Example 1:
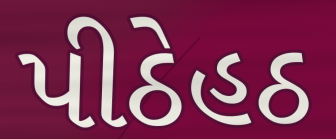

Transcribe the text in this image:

પીઠેહઠ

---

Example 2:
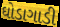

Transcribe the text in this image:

ઘોડાગાડી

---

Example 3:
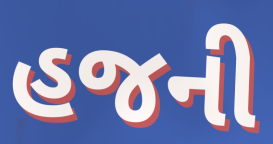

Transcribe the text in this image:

હજની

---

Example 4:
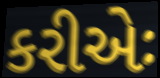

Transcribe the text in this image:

કરીએઃ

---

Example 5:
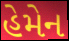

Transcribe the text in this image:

હેમેન